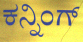
ಕನ್ನಿಂಗ್